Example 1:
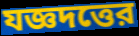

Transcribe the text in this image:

যজ্ঞদত্তের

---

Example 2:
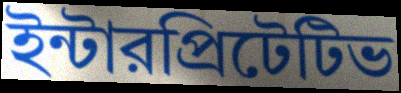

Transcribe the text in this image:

ইন্টারপ্রিটেটিভ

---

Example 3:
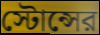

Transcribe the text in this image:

স্টোন্সের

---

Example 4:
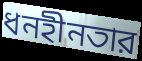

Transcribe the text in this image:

ধনহীনতার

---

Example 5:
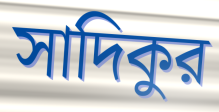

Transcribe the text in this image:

সাদিকুর